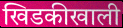
खिडकीखाली